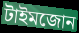
টাইমজোন